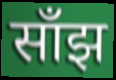
साँझ